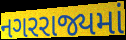
નગરરાજ્યમાં